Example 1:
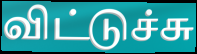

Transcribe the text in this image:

விட்டுச்சு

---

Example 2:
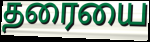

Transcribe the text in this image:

தரையை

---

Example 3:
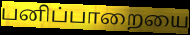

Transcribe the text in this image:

பனிப்பாறையை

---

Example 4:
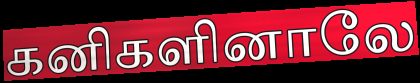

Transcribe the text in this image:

கனிகளினாலே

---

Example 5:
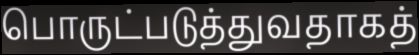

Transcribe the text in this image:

பொருட்படுத்துவதாகத்